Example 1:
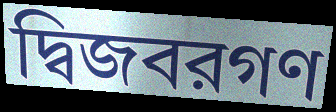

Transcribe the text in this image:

দ্বিজবরগণ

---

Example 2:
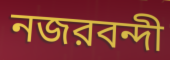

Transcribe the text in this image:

নজরবন্দী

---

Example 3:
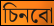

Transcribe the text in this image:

চিনবো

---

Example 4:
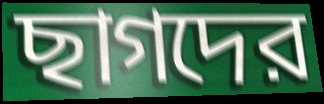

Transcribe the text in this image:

ছাগদের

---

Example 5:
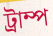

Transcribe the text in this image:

ট্রাম্প